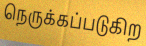
நெருக்கப்படுகிற